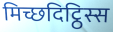
मिच्छदिट्ठिस्स